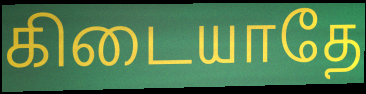
கிடையாதே